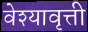
वेश्यावृत्ती